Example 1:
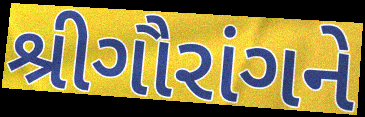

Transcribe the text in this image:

શ્રીગૌરાંગને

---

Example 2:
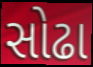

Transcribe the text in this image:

સોઢા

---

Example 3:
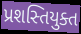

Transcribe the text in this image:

પ્રશસ્તિયુક્ત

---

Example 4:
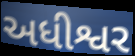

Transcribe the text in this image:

અધીશ્વર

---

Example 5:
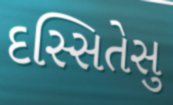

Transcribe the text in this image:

દસ્સિતેસુ